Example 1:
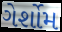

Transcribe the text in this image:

ગેર્શોમ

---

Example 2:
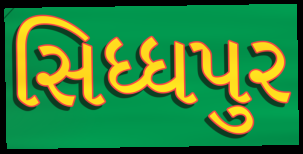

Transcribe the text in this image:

સિધ્ધપુર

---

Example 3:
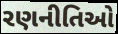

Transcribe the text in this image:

રણનીતિઓ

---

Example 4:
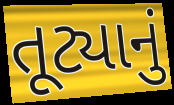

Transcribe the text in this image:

તૂટ્યાનું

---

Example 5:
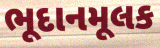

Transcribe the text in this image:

ભૂદાનમૂલક